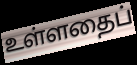
உள்ளதைப்